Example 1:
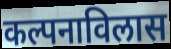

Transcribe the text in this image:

कल्पनाविलास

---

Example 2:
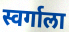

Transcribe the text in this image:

स्वर्गाला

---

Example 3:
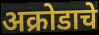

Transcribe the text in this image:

अक्रोडाचे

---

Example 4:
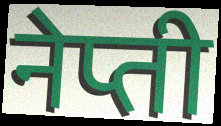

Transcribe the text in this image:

नेप्ती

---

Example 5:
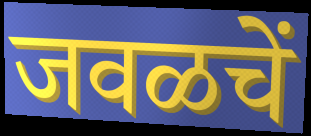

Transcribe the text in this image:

जवळचें